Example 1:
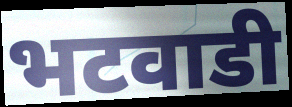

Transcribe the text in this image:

भटवाडी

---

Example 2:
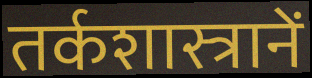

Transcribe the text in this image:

तर्कशास्त्रानें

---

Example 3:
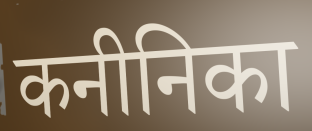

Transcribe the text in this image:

कनीनिका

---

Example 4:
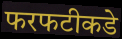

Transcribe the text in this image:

फरफटीकडे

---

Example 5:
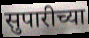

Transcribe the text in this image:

सुपारीच्या